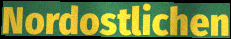
Nordostlichen